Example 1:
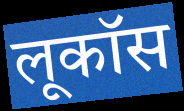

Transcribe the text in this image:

लूकॉस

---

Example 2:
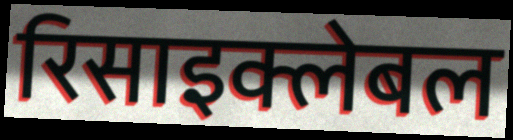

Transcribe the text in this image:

रिसाइक्लेबल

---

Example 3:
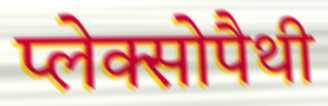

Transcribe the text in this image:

प्लेक्सोपैथी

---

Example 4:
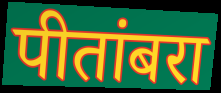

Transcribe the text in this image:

पीतांबरा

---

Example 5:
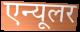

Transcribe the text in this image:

एन्यूलर